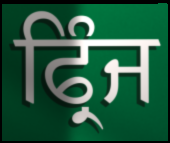
ਫ੍ਰਿੰਜ